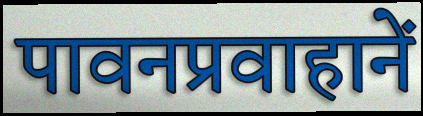
पावनप्रवाहानें